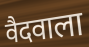
वैदवाला